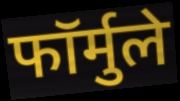
फॉर्मुले